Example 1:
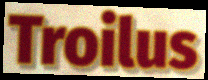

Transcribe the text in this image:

Troilus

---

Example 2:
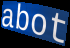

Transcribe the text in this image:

abot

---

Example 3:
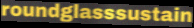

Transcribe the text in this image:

roundglasssustain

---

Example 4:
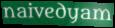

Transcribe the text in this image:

naivedyam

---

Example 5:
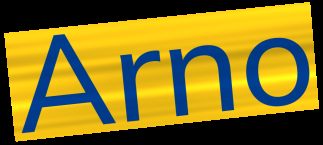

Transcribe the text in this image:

Arno